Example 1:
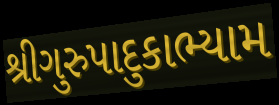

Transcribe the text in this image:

શ્રીગુરુપાદુકાભ્યામ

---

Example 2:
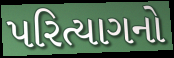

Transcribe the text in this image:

પરિત્યાગનો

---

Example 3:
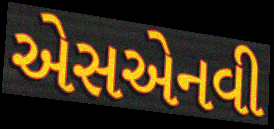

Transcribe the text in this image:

એસએનવી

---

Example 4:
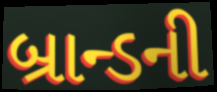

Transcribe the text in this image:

બ્રાન્ડની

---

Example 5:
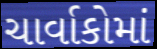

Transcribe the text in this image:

ચાર્વાકોમાં